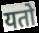
यतो